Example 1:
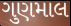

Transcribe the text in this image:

ગુણમાલ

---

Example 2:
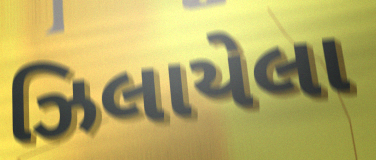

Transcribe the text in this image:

ઝિલાયેલા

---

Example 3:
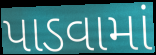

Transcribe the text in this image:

પાડવામાં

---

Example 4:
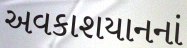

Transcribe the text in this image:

અવકાશયાનનાં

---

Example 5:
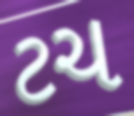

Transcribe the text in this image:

ટચ